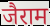
जैराम